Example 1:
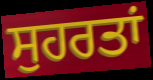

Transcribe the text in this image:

ਸੁਹਰਤਾਂ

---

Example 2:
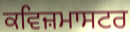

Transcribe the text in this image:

ਕਵਿਜ਼ਮਾਸਟਰ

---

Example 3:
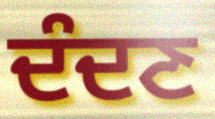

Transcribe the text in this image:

ਦੰਦਣ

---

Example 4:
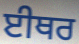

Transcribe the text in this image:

ਈਥਰ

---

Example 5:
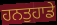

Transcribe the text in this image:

ਹਨਤੁਹਾਡੇ